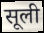
सूली